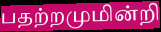
பதற்றமுமின்றி